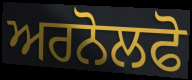
ਅਰਨੋਲਫੋ